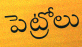
పెట్రోలు